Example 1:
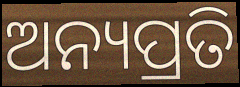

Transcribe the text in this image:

ଅନ୍ୟପ୍ରତି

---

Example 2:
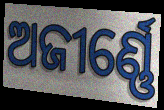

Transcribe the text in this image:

ଅଜୀର୍ଣ୍ଣେ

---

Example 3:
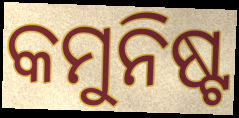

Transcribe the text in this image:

କମୁନିଷ୍ଟ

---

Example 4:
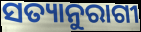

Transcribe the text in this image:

ସତ୍ୟାନୁରାଗୀ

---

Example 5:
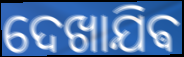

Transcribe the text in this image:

ଦେଖାଯିଵ